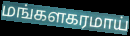
மங்களகரமாய்